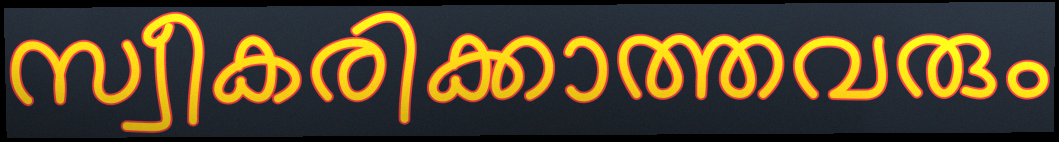
സ്വീകരിക്കാത്തവരും